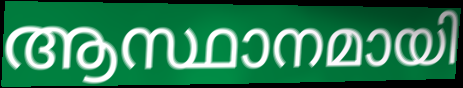
ആസ്ഥാനമായി